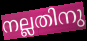
നല്ലതിനു